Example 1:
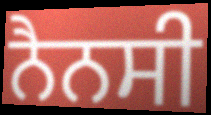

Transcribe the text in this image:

ਨੈਨਸੀ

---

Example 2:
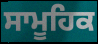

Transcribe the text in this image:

ਸਾਮੂਹਿਕ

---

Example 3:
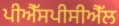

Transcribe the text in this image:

ਪੀਐੱਸਪੀਸੀਐੱਲ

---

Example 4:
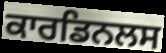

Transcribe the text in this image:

ਕਾਰਡਿਨਲਸ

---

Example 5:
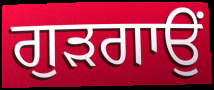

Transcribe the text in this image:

ਗੁੜਗਾਉਂ